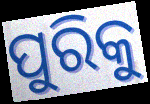
ପୁରିକୁ